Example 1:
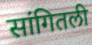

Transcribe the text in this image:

सांगितली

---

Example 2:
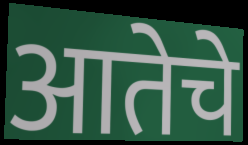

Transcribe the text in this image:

आतेचे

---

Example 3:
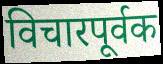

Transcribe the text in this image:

विचारपूर्वक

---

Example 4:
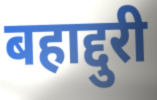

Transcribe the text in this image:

बहाद्दुरी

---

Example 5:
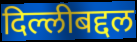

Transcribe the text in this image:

दिल्लीबद्दल